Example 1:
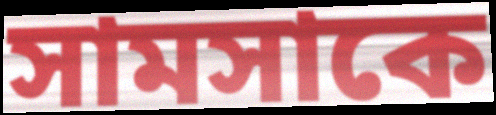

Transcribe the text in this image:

সামসাকে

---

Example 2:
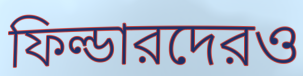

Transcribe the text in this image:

ফিল্ডারদেরও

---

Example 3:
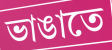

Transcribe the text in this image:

ভাঙাতে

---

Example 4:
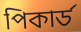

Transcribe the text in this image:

পিকার্ড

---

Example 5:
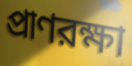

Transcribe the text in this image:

প্রাণরক্ষা